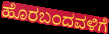
ಹೊರಬಂದವಳಿಗೆ